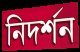
নিদর্শন